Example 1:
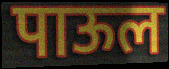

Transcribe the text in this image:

पाऊल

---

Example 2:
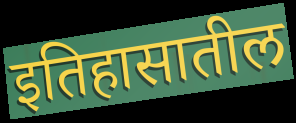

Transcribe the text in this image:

इतिहासातील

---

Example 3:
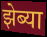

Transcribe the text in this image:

झेब्या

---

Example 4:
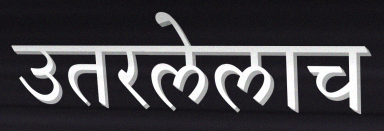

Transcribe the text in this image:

उतरलेलाच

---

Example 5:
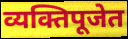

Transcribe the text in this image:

व्यक्तिपूजेत